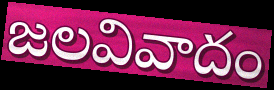
జలవివాదం